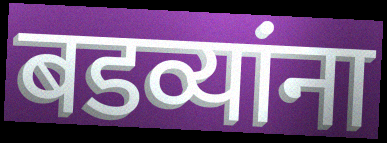
बडव्यांना